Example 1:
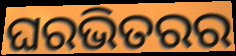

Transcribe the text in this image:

ଘରଭିତରର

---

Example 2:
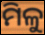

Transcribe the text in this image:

ମିଳୁ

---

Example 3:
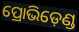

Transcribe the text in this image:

ପ୍ରୋଭିଡ଼େଣ୍ଡ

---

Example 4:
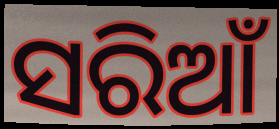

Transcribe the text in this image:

ସରିଆଁ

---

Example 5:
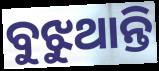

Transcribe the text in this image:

ବୁଝୁଥାନ୍ତି